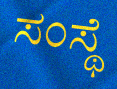
ಸಂಸ್ಥೆ